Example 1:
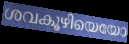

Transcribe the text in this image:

ശവകൂഴിയെയോ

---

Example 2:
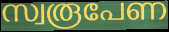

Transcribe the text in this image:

സ്വരൂപേണ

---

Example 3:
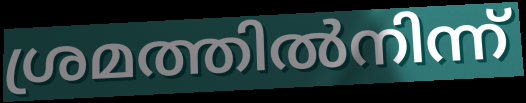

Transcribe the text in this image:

ശ്രമത്തിൽനിന്ന്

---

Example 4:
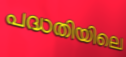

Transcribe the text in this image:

പദ്ധതിയിലെ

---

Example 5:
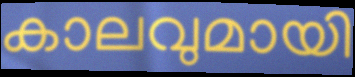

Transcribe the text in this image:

കാലവുമായി